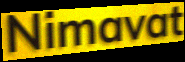
Nimavat